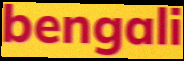
bengali